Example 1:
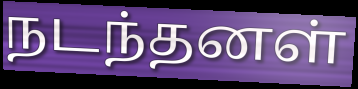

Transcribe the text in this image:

நடந்தனள்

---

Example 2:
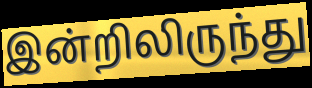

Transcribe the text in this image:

இன்றிலிருந்து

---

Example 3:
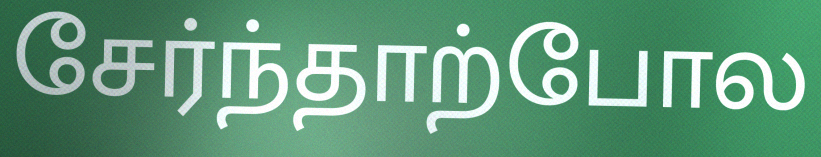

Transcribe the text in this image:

சேர்ந்தாற்போல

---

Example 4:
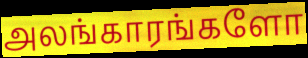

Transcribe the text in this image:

அலங்காரங்களோ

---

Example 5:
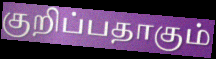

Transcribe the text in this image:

குறிப்பதாகும்